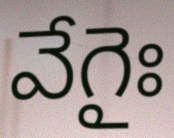
వేగైః